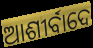
ଆଶୀର୍ବାଦେ